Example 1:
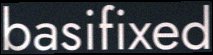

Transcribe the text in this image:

basifixed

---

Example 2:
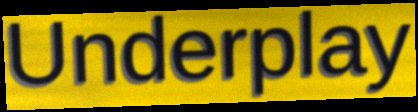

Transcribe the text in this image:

Underplay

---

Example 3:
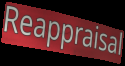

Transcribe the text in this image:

Reappraisal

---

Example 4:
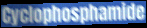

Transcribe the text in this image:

Cyclophosphamide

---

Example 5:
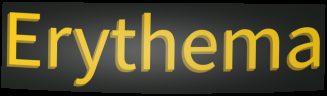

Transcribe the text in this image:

Erythema